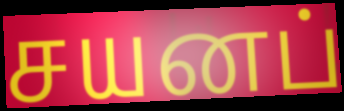
சயனப்